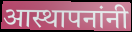
आस्थापनांनी